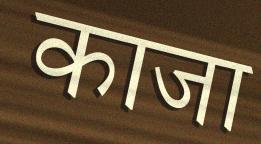
काजा